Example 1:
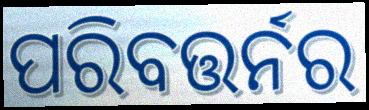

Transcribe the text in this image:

ପରିବତ୍ତର୍ନର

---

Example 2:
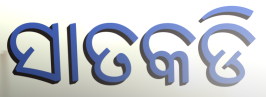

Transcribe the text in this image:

ସାତକଡି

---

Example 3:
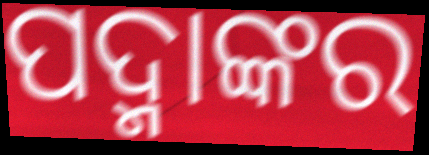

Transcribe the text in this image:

ପଦ୍ମାଙ୍କର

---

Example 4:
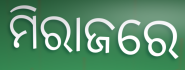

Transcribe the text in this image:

ମିରାଜରେ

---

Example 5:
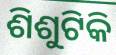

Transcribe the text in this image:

ଶିଶୁଟିକି